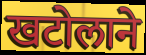
खटोलाने